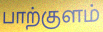
பாற்குளம்